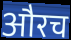
औरच